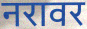
नरावर